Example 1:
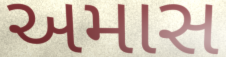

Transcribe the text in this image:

અમાસ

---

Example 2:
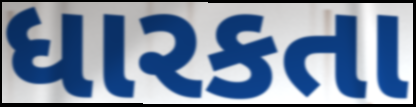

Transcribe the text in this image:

ધારકતા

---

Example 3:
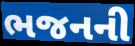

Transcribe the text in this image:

ભજનની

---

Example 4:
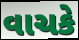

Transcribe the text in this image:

વાચકે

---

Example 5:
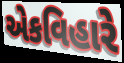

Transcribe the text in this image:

એકવિહારે